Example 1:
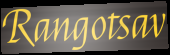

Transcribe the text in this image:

Rangotsav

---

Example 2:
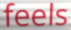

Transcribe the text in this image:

feels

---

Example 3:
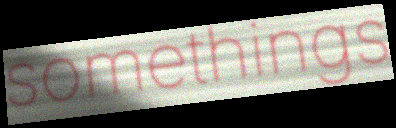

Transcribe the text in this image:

somethings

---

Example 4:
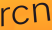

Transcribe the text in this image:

rcn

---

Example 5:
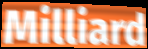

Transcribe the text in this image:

Milliard